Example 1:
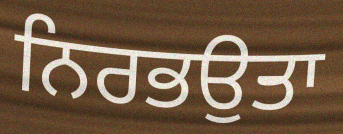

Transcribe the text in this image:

ਨਿਰਭਉਤਾ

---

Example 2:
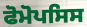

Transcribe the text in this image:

ਫੋਮੋਪਸਿਸ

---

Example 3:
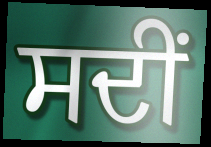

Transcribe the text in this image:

ਸਦੀਂ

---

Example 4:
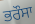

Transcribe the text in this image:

ਭਰੌਸਾ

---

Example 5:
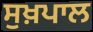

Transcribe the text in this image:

ਸੁਖ਼ਪਾਲ